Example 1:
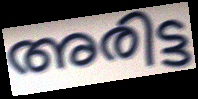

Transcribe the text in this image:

അരിട്ട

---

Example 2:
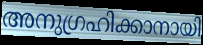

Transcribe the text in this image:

അനുഗ്രഹിക്കാനായി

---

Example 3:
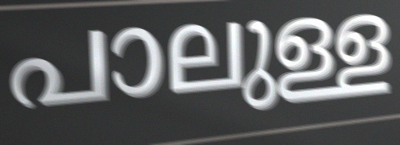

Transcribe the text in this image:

പാലുള്ള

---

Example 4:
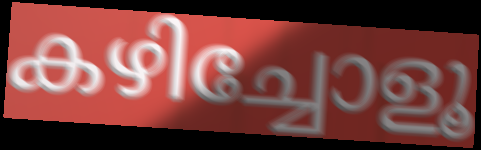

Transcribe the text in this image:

കഴിച്ചോളൂ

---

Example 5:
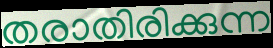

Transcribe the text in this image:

തരാതിരിക്കുന്ന